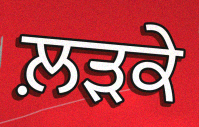
ਲ਼ਡ਼ਕੇ